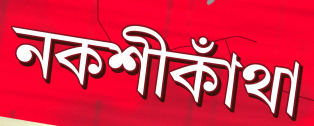
নকশীকাঁথা